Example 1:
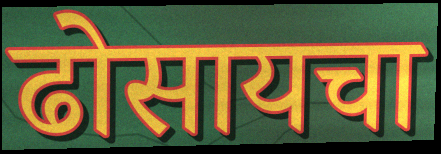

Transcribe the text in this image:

ढोसायचा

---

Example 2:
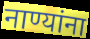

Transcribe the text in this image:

नाण्यांना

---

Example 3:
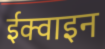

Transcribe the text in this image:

ईक्वाइन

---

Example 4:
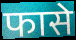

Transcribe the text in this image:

फासे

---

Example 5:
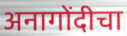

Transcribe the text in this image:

अनागोंदीचा